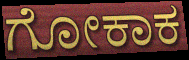
ಗೋಕಾಕ